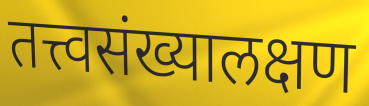
तत्त्वसंख्यालक्षण